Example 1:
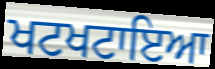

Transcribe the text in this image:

ਖਟਖਟਾਇਆ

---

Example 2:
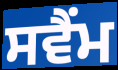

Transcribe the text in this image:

ਸਵੈਂਮ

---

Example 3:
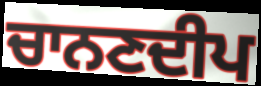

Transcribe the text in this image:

ਚਾਨਣਦੀਪ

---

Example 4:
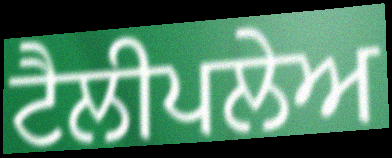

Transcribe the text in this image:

ਟੈਲੀਪਲੇਅ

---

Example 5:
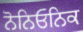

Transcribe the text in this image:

ਨੋਨਿਓਨਿਕ